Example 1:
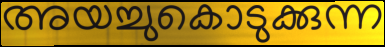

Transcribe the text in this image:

അയച്ചുകൊടുക്കുന്ന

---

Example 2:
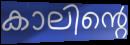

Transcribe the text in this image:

കാലിന്റെ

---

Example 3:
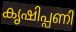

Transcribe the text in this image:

കൃഷിപ്പണി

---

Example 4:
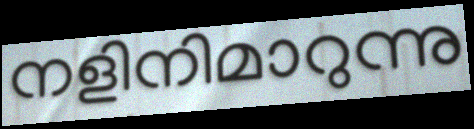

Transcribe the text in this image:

നളിനിമാറുന്നു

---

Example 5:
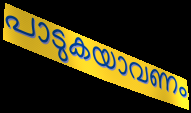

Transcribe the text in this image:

പാടുകയാവണം